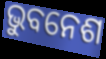
ଭୁବନେଶ